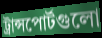
ট্রান্সপোর্টগুলো